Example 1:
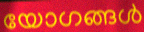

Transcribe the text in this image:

യോഗങ്ങൾ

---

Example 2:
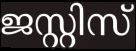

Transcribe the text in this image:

ജസ്റ്റിസ്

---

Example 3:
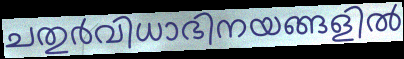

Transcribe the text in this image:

ചതുർവിധാഭിനയങ്ങളിൽ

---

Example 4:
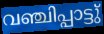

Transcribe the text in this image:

വഞ്ചിപ്പാട്ടു്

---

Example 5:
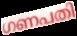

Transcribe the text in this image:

ഗണപതി